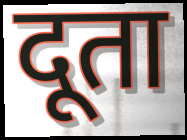
दूता